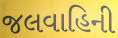
જલવાહિની